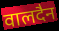
वालदैन